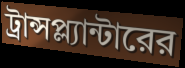
ট্রান্সপ্ল্যান্টারের